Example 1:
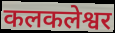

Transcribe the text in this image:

कलकलेश्वर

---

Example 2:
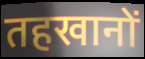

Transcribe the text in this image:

तहखानों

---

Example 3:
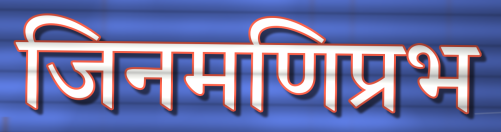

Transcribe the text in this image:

जिनमणिप्रभ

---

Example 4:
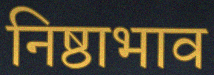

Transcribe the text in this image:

निष्ठाभाव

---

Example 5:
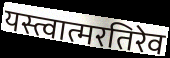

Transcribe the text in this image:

यस्त्वात्मरतिरेव